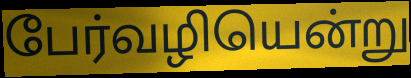
பேர்வழியென்று